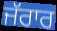
ਜੱਰਾਰ